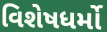
વિશેષધર્મો